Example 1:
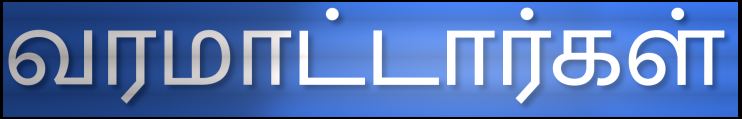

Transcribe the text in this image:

வரமாட்டார்கள்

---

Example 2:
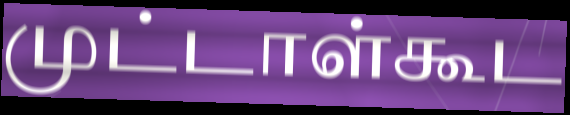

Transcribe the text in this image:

முட்டாள்கூட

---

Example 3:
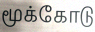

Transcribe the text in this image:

மூக்கோடு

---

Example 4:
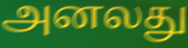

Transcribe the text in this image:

அனலது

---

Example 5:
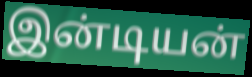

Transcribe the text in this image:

இன்டியன்